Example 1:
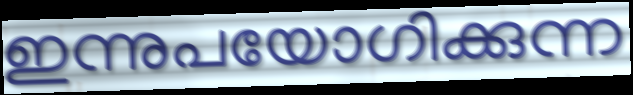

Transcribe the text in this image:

ഇന്നുപയോഗിക്കുന്ന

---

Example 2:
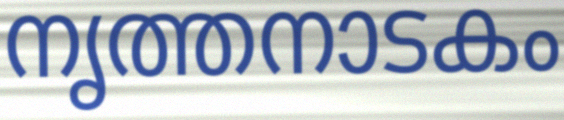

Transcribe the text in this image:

നൃത്തനാടകം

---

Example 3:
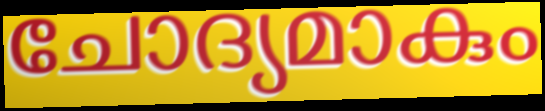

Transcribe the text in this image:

ചോദ്യമാകും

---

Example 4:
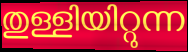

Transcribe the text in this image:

തുള്ളിയിറ്റുന്ന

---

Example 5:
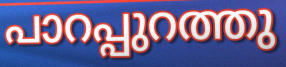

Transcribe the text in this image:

പാറപ്പുറത്തു